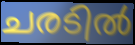
ചരടിൽ